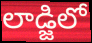
లాడ్జిలో